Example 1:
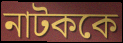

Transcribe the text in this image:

নাটককে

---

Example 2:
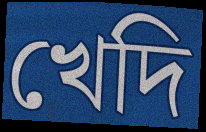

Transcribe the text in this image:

খেদি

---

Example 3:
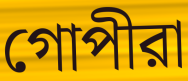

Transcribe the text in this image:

গোপীরা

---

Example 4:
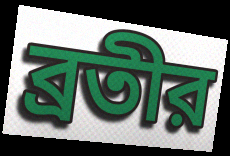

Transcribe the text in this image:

ব্রতীর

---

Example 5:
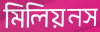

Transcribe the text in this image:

মিলিয়নস